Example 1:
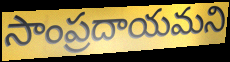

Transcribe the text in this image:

సాంప్రదాయమని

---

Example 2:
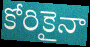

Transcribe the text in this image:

కోరికైనా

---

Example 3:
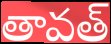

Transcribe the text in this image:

తావత్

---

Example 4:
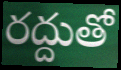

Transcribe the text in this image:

రద్దుతో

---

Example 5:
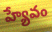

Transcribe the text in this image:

హ్యేవం